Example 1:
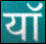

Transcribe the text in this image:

यॉ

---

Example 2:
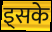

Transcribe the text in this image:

इ्सके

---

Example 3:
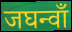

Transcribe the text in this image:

जघन्वाँ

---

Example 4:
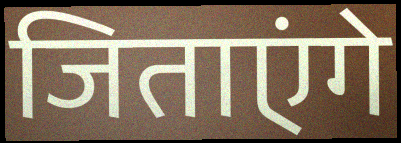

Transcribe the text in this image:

जिताएंगे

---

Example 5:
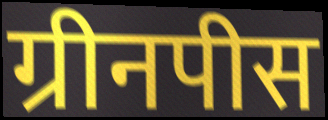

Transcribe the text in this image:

ग्रीनपीस